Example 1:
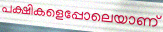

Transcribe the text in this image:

പക്ഷികളെപ്പോലെയാണ്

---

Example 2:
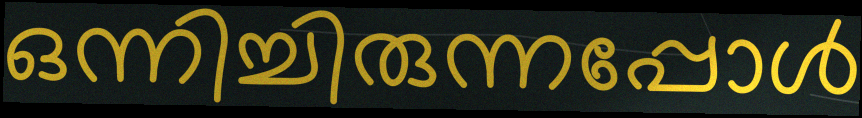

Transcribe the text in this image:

ഒന്നിച്ചിരുന്നപ്പോൾ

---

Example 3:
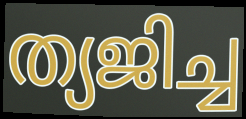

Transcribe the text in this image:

ത്യജിച്ച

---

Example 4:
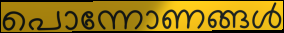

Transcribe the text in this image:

പൊന്നോണങ്ങൾ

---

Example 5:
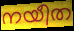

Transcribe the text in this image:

നയീത